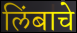
लिंबाचे